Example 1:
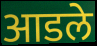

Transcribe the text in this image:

आडले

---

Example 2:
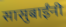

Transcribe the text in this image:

सासुबाईंनी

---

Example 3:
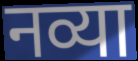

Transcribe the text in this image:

नव्या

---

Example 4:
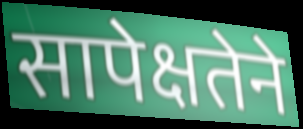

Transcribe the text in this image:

सापेक्षतेने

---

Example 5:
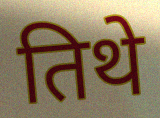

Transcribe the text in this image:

तिथे